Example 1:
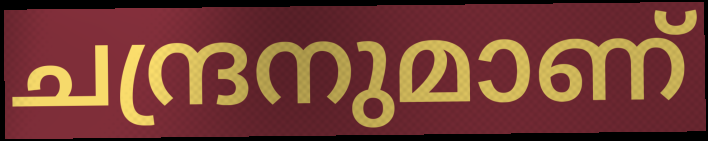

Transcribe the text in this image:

ചന്ദ്രനുമാണ്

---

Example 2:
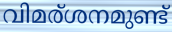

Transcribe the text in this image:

വിമര്ശനമുണ്ട്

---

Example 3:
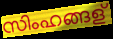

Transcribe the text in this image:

സിംഹങ്ങള്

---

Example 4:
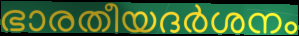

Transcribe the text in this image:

ഭാരതീയദർശനം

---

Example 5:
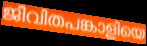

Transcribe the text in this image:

ജീവിതപങ്കാളിയെ